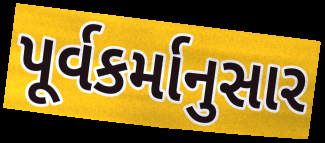
પૂર્વકર્માનુસાર